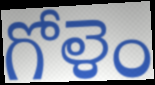
గోళెం